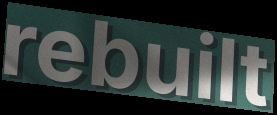
rebuilt